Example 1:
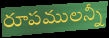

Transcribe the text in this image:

రూపములన్నీ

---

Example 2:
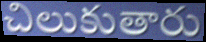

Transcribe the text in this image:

చిలుకుతారు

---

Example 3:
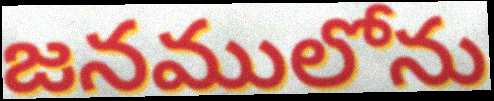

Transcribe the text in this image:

జనములోను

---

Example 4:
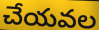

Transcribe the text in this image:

చేయవల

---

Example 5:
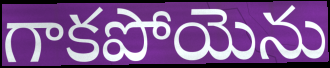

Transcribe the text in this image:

గాకపోయెను